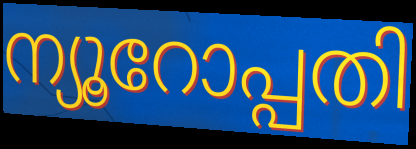
ന്യൂറോപ്പതി